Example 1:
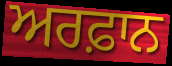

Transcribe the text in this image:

ਅਰਫ਼ਾਨ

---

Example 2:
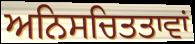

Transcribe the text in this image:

ਅਨਿਸਚਿਤਤਾਵਾਂ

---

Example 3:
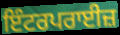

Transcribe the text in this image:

ਇੰਟਰਪਰਾਈਜ਼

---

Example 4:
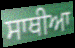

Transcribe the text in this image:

ਸਾਥੀਆ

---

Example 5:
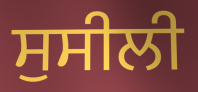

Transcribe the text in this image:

ਸੁਸੀਲੀ